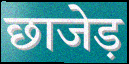
छाजेड़